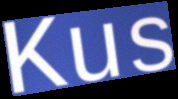
Kus